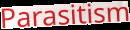
Parasitism